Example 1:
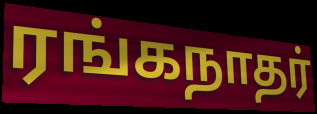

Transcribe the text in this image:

ரங்கநாதர்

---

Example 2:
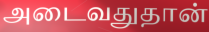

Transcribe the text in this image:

அடைவதுதான்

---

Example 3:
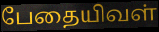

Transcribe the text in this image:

பேதையிவள்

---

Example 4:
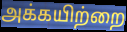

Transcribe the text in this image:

அக்கயிற்றை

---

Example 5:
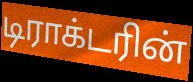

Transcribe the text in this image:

டிராக்டரின்